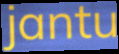
jantu